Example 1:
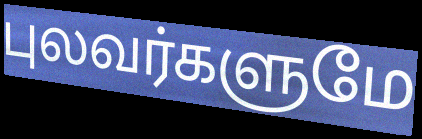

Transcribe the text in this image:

புலவர்களுமே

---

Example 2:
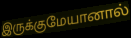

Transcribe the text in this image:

இருக்குமேயானால்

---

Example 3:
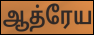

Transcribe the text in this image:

ஆத்ரேய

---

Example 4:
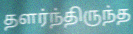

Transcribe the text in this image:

தளர்ந்திருந்த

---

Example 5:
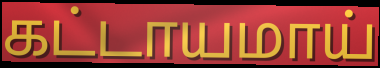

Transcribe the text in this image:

கட்டாயமாய்